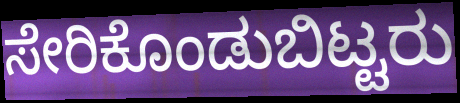
ಸೇರಿಕೊಂಡುಬಿಟ್ಟರು